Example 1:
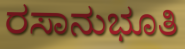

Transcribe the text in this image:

ರಸಾನುಭೂತಿ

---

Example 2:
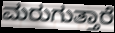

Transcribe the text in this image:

ಮರುಗುತ್ತಾರೆ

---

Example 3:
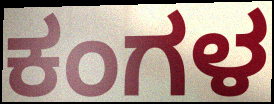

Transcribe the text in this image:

ಕಂಗಳ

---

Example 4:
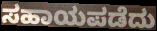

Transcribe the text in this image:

ಸಹಾಯಪಡೆದು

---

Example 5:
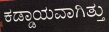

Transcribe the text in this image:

ಕಡ್ಡಾಯವಾಗಿತ್ತು